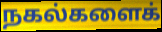
நகல்களைக்